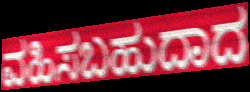
ವಹಿಸಬಹುದಾದ